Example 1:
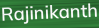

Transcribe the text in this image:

Rajinikanth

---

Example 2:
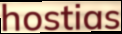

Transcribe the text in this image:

hostias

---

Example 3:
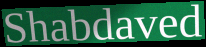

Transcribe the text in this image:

Shabdaved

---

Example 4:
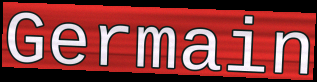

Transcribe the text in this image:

Germain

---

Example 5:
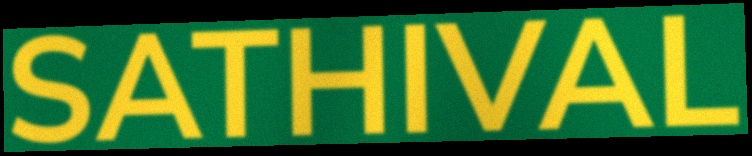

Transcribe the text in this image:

SATHIVAL